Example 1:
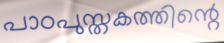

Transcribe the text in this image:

പാഠപുസ്തകത്തിന്റെ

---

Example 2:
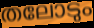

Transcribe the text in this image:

തലോടും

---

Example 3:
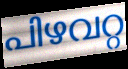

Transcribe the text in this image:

പിഴവറ്റ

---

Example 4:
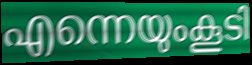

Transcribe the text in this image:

എന്നെയുംകൂടി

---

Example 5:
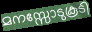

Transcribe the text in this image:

മനസ്സോടുകൂടി